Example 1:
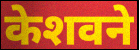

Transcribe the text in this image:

केशवने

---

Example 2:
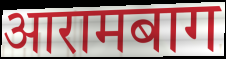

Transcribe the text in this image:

आरामबाग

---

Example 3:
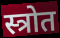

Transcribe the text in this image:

स्त्रोत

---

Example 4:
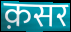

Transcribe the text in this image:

क़सर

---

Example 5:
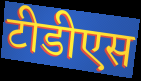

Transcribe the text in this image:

टीडीएस